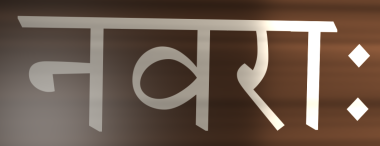
नवराः